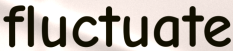
fluctuate